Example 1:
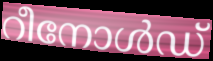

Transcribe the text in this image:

റീനോൾഡ്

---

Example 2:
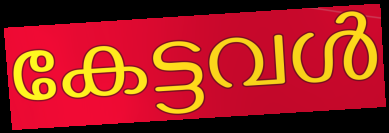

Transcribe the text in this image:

കേട്ടവൾ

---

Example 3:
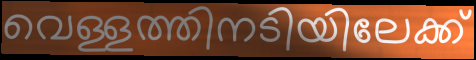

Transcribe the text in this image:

വെള്ളത്തിനടിയിലേക്ക്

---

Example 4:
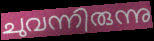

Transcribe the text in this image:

ചുവന്നിരുന്നു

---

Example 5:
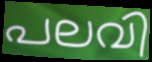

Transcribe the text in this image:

പലവി